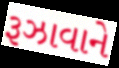
રૂઝાવાને